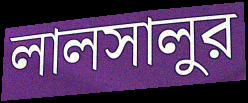
লালসালুর